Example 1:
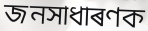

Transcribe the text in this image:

জনসাধাৰণক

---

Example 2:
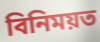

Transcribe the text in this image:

বিনিময়ত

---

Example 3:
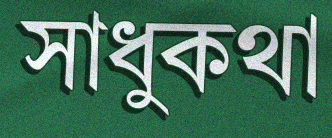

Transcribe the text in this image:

সাধুকথা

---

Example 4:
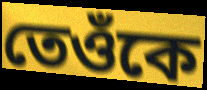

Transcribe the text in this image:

তেওঁকে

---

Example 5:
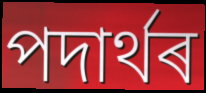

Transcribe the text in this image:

পদাৰ্থৰ